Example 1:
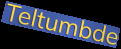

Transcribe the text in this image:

Teltumbde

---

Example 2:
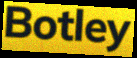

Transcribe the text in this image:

Botley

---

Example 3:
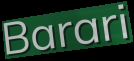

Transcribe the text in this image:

Barari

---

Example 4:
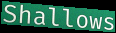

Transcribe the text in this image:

Shallows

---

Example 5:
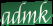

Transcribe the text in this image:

admk